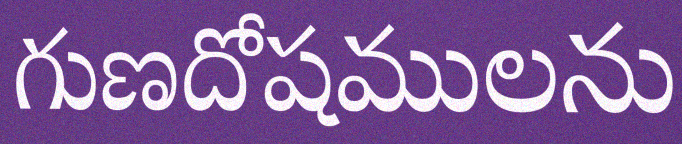
గుణదోషములను